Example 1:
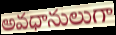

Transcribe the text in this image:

అవధానులుగా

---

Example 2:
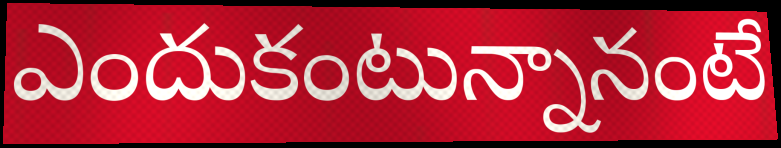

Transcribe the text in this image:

ఎందుకంటున్నానంటే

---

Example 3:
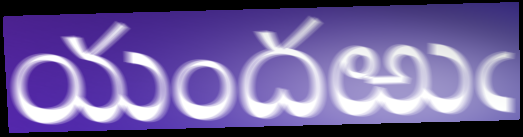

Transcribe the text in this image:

యందఱుఁ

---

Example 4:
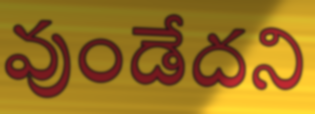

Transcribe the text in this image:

వుండేదని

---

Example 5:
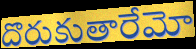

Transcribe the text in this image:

దొరుకుతారేమో